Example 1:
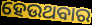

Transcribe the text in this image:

ହେଉଥବାର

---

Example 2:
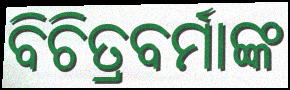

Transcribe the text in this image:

ବିଚିତ୍ରବର୍ମାଙ୍କ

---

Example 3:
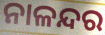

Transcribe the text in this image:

ନାଳନ୍ଦର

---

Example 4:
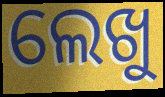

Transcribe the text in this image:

ଲେଖୁ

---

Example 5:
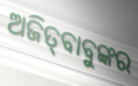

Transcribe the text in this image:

ଅଜିତ୍‍ବାବୁଙ୍କର